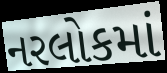
નરલોકમાં